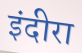
इंदीरा